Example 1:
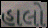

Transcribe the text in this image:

હાલો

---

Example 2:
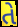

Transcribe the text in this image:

તે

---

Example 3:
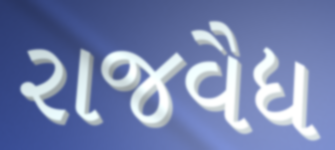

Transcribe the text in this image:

રાજવૈદ્ય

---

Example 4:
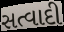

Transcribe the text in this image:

સત્વાદી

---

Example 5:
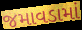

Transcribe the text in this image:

જમાવડામાં